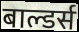
बाल्डर्स